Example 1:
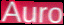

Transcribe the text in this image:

Auro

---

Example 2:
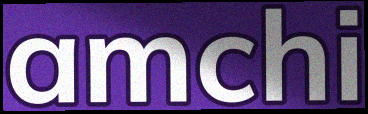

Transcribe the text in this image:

amchi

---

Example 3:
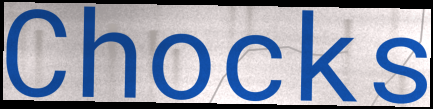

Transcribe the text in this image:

Chocks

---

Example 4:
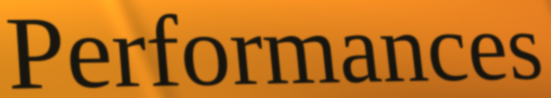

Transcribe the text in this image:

Performances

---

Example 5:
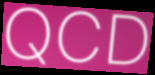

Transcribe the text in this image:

QCD